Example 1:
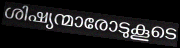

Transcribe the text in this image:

ശിഷ്യന്മാരോടുകൂടെ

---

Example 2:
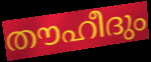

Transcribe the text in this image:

തൗഹീദും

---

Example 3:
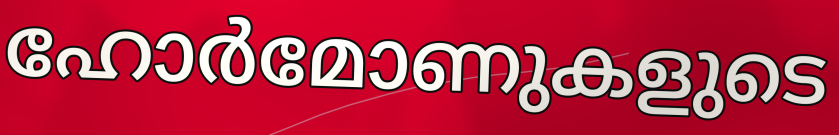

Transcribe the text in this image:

ഹോർമോണുകളുടെ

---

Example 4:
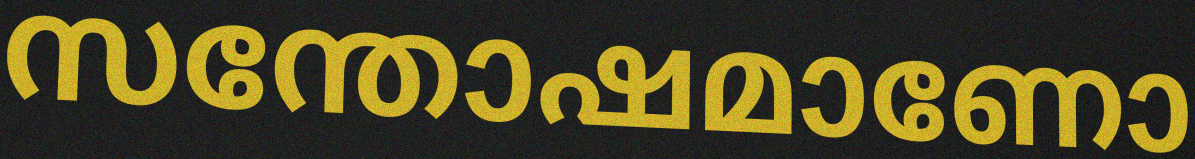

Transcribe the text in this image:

സന്തോഷമാണോ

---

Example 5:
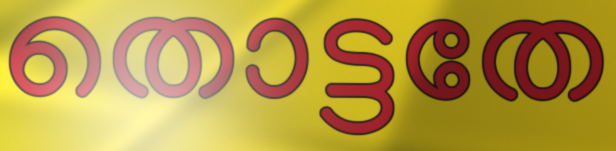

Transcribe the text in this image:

തൊട്ടതേ